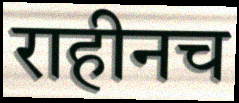
राहीनच